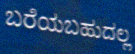
ಬರೆಯಬಹುದಲ್ಲ